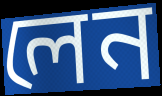
লেন